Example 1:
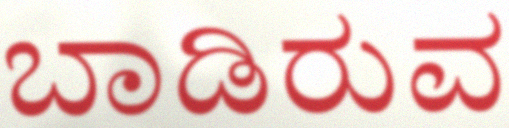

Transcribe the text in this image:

ಬಾಡಿರುವ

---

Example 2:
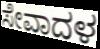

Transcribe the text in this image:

ಸೇವಾದಳ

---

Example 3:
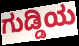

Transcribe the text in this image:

ಗುಡ್ಡಿಯ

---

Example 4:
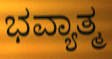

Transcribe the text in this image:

ಭವ್ಯಾತ್ಮ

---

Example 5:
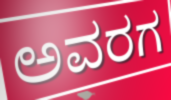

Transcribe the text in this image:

ಅವರಗ